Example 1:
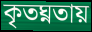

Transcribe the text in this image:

কৃতঘ্নতায়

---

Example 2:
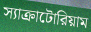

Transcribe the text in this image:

স্যাক্রাটোরিয়াম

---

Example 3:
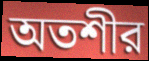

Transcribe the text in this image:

অতশীর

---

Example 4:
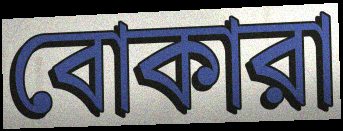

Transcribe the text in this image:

বোকারা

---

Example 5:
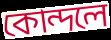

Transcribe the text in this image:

কোন্দলে